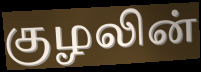
குழலின்